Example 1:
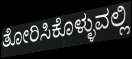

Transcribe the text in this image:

ತೋರಿಸಿಕೊಳ್ಳುವಲ್ಲಿ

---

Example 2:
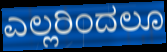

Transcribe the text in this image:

ಎಲ್ಲರಿಂದಲೂ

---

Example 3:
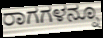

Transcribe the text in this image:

ರಾಗಗಳನ್ನೂ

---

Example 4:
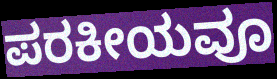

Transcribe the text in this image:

ಪರಕೀಯವೂ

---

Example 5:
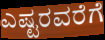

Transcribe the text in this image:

ಎಷ್ಟರವರೆಗೆ